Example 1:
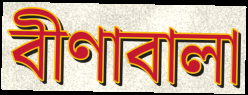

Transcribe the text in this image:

বীণাবালা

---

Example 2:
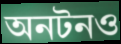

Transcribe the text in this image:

অনটনও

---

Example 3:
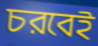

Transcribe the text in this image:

চরবেই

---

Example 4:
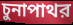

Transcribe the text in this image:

চুনাপাথর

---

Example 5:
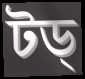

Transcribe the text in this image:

টড্